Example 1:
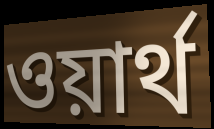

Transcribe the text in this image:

ওয়ার্থ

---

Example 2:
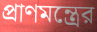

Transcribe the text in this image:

প্রাণমন্ত্রের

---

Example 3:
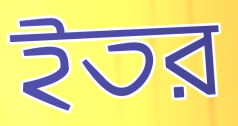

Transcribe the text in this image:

ইতর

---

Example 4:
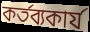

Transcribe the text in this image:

কর্তব্যকার্য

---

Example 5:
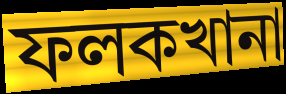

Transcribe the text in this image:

ফলকখানা